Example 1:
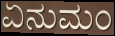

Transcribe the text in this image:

ಏನುಮಂ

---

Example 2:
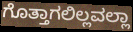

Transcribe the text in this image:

ಗೊತ್ತಾಗಲಿಲ್ಲವಲ್ಲಾ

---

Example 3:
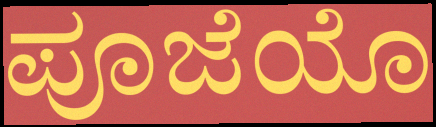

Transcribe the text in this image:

ಪೂಜೆಯೊ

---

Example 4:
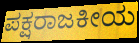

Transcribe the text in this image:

ಪಕ್ಷರಾಜಕೀಯ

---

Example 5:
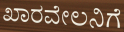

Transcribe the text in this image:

ಖಾರವೇಲನಿಗೆ